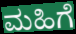
ಮಹಿಗೆ